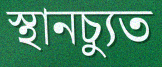
স্থানচ্যুত